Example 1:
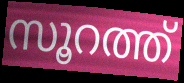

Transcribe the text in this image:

സൂറത്ത്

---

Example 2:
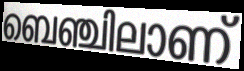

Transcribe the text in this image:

ബെഞ്ചിലാണ്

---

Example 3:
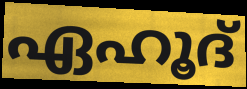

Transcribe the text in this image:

ഏഹൂദ്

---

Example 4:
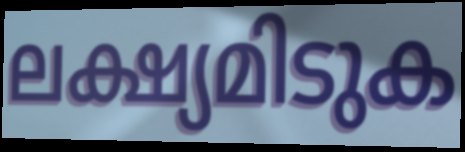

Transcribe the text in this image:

ലക്ഷ്യമിടുക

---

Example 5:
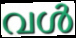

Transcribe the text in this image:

വൾ